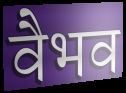
वैभव